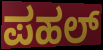
ಪಹಲ್